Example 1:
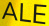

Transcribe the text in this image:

ALE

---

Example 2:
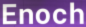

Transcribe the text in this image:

Enoch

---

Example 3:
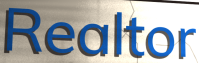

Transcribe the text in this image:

Realtor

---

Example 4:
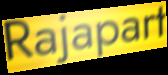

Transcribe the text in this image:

Rajapart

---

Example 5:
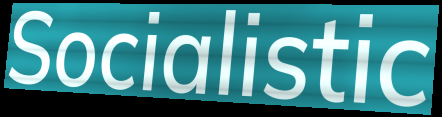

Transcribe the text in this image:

Socialistic